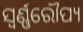
ସ୍ୱର୍ଣ୍ଣରୌପ୍ୟ